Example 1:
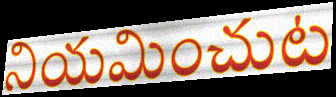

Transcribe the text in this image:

నియమించుట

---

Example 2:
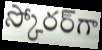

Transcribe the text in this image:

స్కోరర్‌గా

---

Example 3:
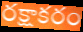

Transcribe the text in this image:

రక్షాకరం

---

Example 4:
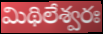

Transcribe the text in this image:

మిథిలేశ్వరః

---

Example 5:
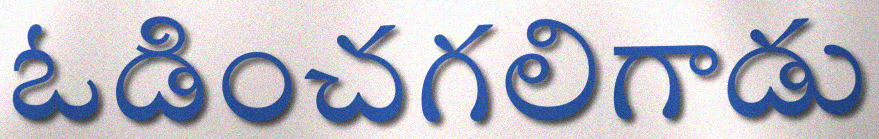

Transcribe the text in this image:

ఓడించగలిగాడు